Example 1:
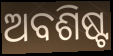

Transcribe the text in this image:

ଅବଶିଷ୍ଟ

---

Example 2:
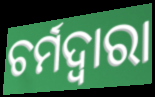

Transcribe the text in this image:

ଚର୍ମଦ୍ଵାରା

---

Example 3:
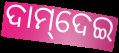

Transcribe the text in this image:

ଦାମ୍‌ଦେଇ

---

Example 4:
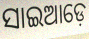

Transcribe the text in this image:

ସାଇଆଡ଼େ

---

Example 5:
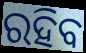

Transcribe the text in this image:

ରହିବ